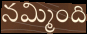
నమ్మింది